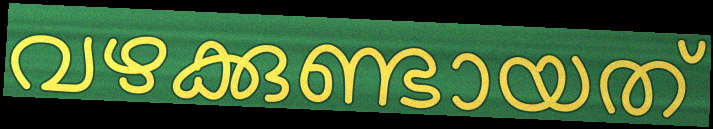
വഴക്കുണ്ടായത്